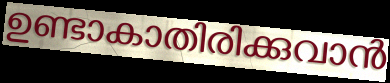
ഉണ്ടാകാതിരിക്കുവാൻ